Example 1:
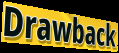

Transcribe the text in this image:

Drawback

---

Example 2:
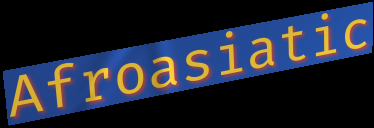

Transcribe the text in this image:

Afroasiatic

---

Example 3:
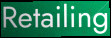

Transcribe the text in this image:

Retailing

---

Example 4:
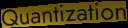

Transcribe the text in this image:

Quantization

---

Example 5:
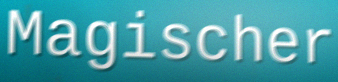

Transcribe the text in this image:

Magischer